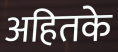
अहितके